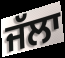
ਜੱਲਾ